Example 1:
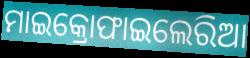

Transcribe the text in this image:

ମାଇକ୍ରୋଫାଇଲେରିଆ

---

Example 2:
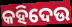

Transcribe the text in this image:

କହିଦେଉ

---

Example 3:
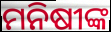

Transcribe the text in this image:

ମନିଷୀଙ୍କ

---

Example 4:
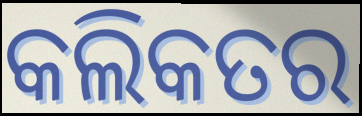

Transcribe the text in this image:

କଲିକତର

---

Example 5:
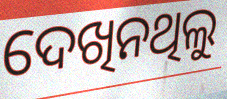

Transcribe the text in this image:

ଦେଖିନଥିଲୁ